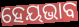
ହେୟଭାବ